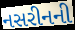
નસરીનની